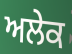
ਅਲੇਕ